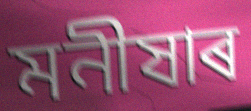
মনীষাৰ